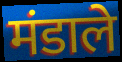
मंडाले